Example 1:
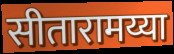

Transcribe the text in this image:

सीतारामय्या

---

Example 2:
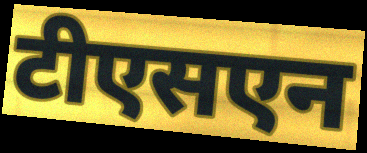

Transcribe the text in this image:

टीएसएन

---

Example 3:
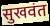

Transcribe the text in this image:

सुखवंत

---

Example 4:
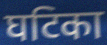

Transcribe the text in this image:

घटिका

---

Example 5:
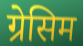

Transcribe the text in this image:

ग्रेसिम